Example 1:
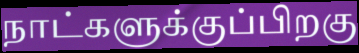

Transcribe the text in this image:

நாட்களுக்குப்பிறகு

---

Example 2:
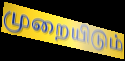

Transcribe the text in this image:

முறையிடும்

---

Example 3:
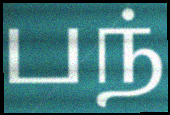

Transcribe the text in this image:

பந்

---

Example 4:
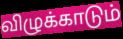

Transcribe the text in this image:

விழுக்காடும்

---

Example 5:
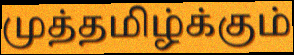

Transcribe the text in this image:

முத்தமிழ்க்கும்